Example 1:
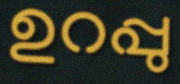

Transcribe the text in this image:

ഉറപ്പു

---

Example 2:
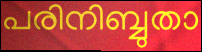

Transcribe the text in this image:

പരിനിബ്ബുതാ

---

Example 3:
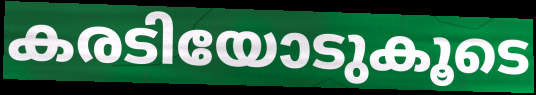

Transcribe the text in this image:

കരടിയോടുകൂടെ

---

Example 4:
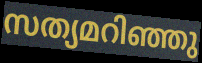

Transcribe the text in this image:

സത്യമറിഞ്ഞു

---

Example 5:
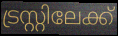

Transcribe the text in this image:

ട്രസ്റ്റിലേക്ക്